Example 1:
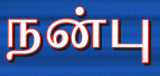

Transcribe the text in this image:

நன்பு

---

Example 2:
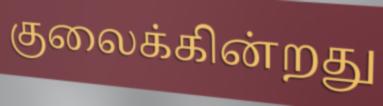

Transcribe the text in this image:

குலைக்கின்றது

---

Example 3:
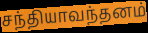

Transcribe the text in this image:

சந்தியாவந்தனம்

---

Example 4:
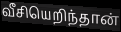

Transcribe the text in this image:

வீசியெறிந்தான்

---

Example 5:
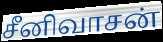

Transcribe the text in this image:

சீனிவாசன்